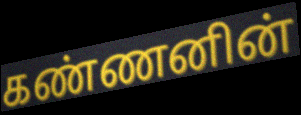
கண்ணனின்